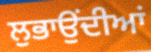
ਲੁਭਾਉਂਦੀਆਂ